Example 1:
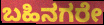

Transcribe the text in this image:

ಬಹಿನಗರೇ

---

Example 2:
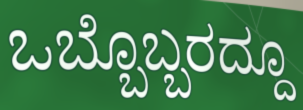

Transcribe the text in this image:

ಒಬ್ಬೊಬ್ಬರದ್ದೂ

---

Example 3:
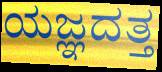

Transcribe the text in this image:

ಯಜ್ಞದತ್ತ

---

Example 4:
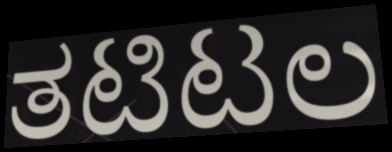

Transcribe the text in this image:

ತಟಿಟಲ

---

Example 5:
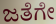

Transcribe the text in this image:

ಜತೆಗೇ